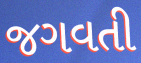
જગવતી